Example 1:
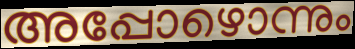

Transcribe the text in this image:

അപ്പോഴൊന്നും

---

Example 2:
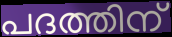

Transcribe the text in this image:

പദത്തിന്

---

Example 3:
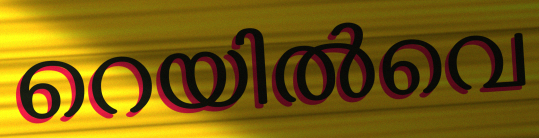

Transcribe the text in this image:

റെയിൽവെ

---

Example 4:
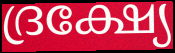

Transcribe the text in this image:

ദ്രക്ഷ്യേ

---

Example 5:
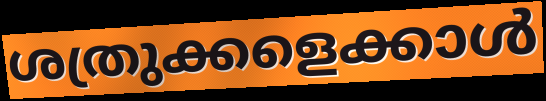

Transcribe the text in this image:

ശത്രുക്കളെക്കാൾ